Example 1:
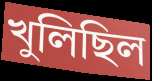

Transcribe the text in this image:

খুলিছিল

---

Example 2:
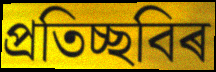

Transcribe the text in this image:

প্ৰতিচ্ছবিৰ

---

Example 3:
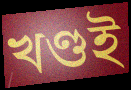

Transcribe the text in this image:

খণ্ডই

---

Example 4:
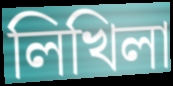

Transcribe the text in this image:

লিখিলা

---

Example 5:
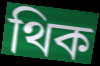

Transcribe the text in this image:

থিক